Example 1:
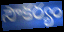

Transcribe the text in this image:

సౌకర్యం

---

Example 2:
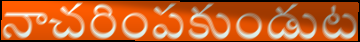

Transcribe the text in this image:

నాచరింపకుండుట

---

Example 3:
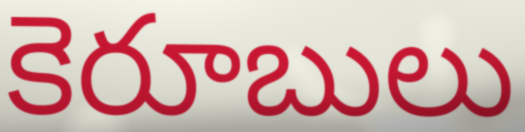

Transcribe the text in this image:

కెరూబులు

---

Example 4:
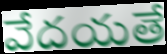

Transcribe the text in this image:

వేదయతే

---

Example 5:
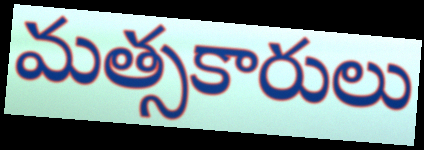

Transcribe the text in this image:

మత్సకారులు